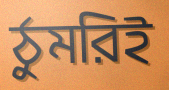
ঠুমরিই